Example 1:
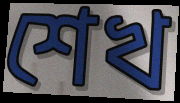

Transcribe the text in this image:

শেখ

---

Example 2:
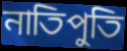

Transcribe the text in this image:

নাতিপুতি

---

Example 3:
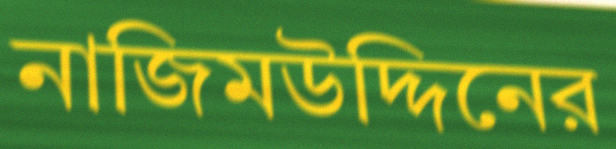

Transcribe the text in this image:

নাজিমউদ্দিনের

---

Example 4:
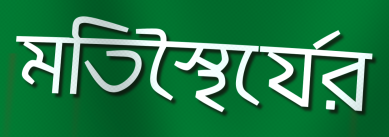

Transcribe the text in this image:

মতিস্থৈর্যের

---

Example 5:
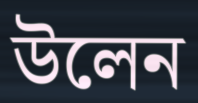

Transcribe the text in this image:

উলেন